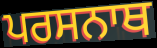
ਪਰਸਨਾਥ